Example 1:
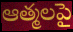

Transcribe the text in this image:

ఆత్మలపై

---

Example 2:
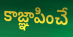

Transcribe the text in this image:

కాజ్ఞాపించే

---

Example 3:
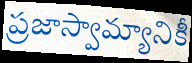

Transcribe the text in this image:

ప్రజాస్వామ్యానికీ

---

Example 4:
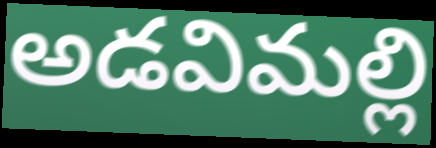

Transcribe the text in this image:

అడవిమల్లి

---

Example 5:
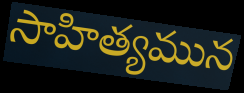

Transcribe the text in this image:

సాహిత్యమున